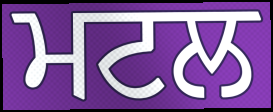
ਮਟਲ